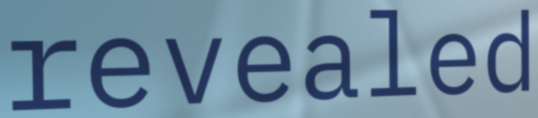
revealed